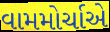
વામમોર્ચાએ